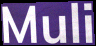
Muli